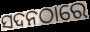
ସଦନଠାରେ